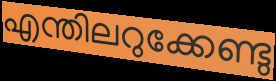
എന്തിലറുക്കേണ്ടു